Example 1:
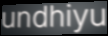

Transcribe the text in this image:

undhiyu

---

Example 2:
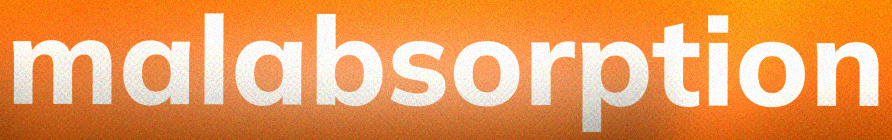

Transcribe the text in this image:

malabsorption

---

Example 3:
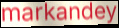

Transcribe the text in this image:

markandey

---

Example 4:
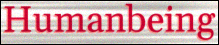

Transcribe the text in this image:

Humanbeing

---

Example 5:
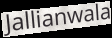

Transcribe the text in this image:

Jallianwala